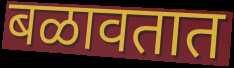
बळावतात